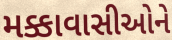
મક્કાવાસીઓને